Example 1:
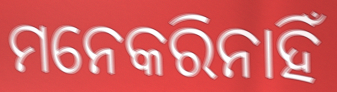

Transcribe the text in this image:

ମନେକରିନାହିଁ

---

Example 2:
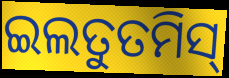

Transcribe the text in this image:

ଇଲତୁତମିସ୍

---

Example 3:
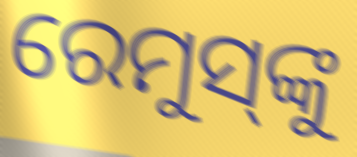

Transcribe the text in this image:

ରେମୁସ୍‌ଙ୍କୁ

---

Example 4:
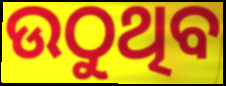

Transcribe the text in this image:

ଉଠୁଥିବ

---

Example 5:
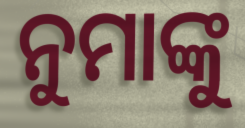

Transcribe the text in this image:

ନୁମାଙ୍କୁ